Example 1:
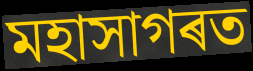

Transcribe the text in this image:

মহাসাগৰত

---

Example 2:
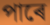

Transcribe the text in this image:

পাৰে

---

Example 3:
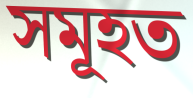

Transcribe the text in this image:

সমূহত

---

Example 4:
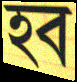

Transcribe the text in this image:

হব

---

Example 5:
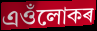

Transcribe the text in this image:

এওঁলোকৰ